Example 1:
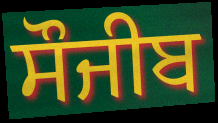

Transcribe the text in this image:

ਸੌਜੀਬ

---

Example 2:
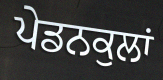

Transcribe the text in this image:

ਪੇਡਨਕੁਲਾਂ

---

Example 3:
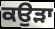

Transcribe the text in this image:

ਕਉੜਾ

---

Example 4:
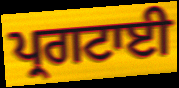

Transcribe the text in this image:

ਪ੍ਰਗਟਾਈ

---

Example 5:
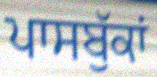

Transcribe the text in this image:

ਪਾਸਬੁੱਕਾਂ